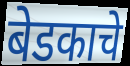
बेडकाचे